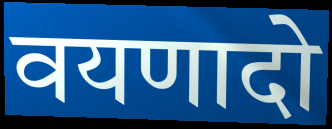
वयणादो